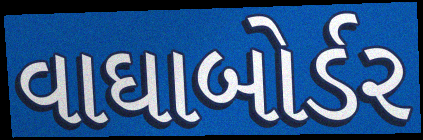
વાઘાબોર્ડર